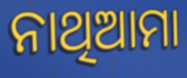
ନାଥିଆମା